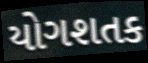
યોગશતક